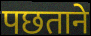
पछताने